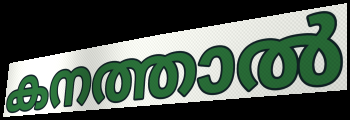
കനത്താൽ